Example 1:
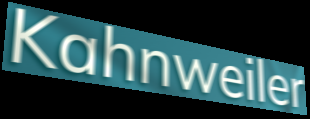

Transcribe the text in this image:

Kahnweiler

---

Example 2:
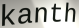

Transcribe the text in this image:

kanth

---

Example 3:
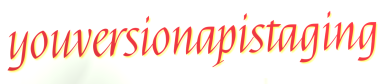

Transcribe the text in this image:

youversionapistaging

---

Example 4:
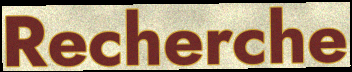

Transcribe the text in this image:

Recherche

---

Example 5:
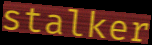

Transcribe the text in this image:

stalker